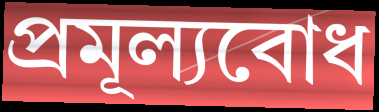
প্ৰমূল্যবোধ